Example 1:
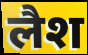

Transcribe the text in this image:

लैश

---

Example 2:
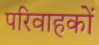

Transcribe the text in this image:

परिवाहकों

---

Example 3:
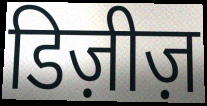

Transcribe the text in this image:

डिज़ीज़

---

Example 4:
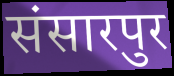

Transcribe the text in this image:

संसारपुर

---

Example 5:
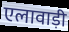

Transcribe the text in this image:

एलावाड़ी